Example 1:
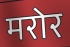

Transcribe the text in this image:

मरोर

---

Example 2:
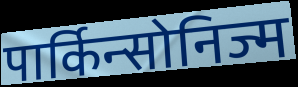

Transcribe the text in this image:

पार्किन्सोनिज्म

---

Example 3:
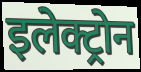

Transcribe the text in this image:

इलेक्ट्रोन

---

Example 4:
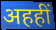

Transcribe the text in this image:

अहहीं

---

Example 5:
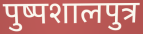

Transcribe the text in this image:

पुष्पशालपुत्र